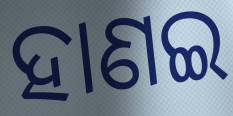
ହାଣଇ